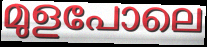
മുളപോലെ